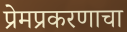
प्रेमप्रकरणाचा